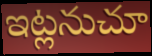
ఇట్లనుచూ